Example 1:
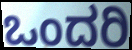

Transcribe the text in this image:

ಒಂದರಿ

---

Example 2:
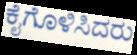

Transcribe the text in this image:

ಕೈಗೊಳಿಸಿದರು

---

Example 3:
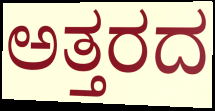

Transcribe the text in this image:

ಅತ್ತರದ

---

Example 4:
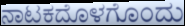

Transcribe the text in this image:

ನಾಟಕದೊಳಗೊಂದು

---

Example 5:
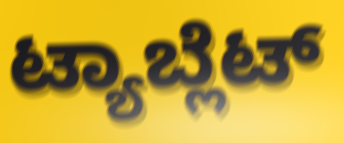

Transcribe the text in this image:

ಟ್ಯಾಬ್ಲೆಟ್